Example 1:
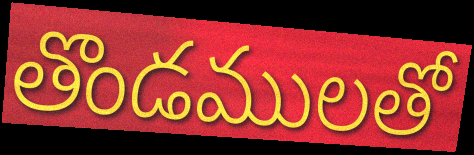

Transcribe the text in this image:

తొండములతో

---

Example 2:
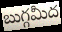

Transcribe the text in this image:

బుగ్గమీద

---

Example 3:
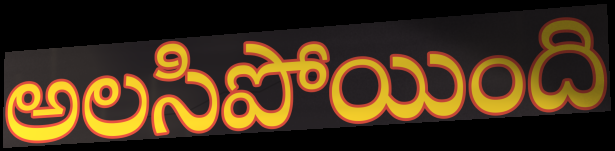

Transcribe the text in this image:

అలసిపోయింది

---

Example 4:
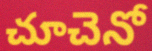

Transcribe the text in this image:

చూచెనో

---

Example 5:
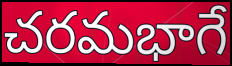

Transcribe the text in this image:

చరమభాగే